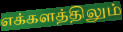
எக்களத்திலும்